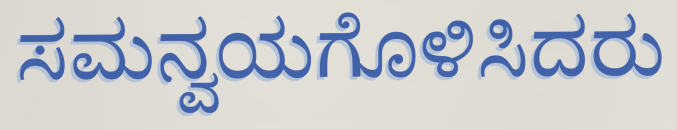
ಸಮನ್ವಯಗೊಳಿಸಿದರು